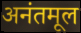
अनंतमूल